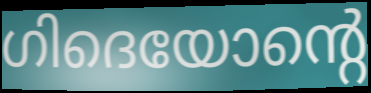
ഗിദെയോന്റെ